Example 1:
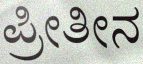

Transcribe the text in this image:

ಪ್ರೀತೀನ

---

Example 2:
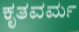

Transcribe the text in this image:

ಕೃತವರ್ಮ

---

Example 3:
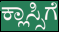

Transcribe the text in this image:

ಕ್ಲಾಸ್ಸಿಗೆ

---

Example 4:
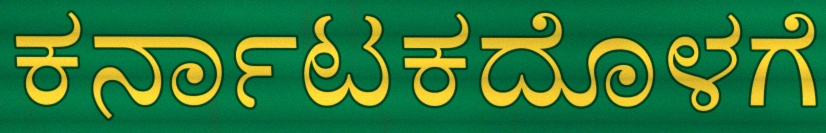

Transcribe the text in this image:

ಕರ್ನಾಟಕದೊಳಗೆ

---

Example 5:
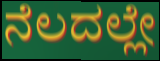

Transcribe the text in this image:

ನೆಲದಲ್ಲೇ